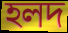
হলদ